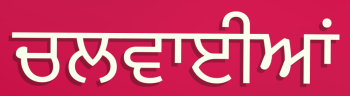
ਚਲਵਾਈਆਂ